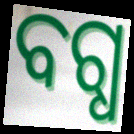
ବଗ୍ଧ